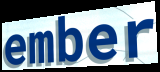
ember